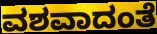
ವಶವಾದಂತೆ